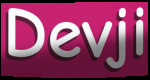
Devji